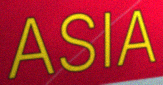
ASIA